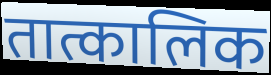
तात्कालिक